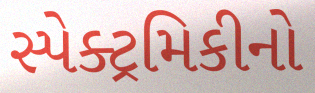
સ્પેક્ટ્રમિકીનો